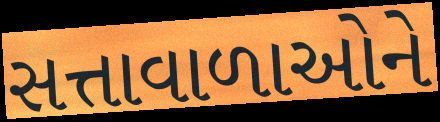
સત્તાવાળાઓને